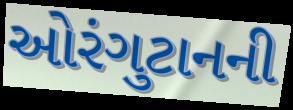
ઓરંગુટાનની